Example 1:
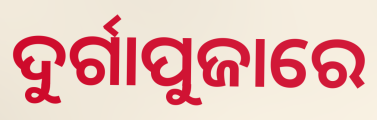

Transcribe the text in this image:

ଦୁର୍ଗାପୁଜାରେ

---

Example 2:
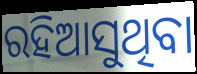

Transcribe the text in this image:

ରହିଆସୁଥିବା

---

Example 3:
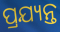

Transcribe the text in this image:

ପ୍ରଯ୍ୟନ୍ତ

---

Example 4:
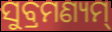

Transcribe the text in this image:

ସୁବ୍ରମଣ୍ୟମ୍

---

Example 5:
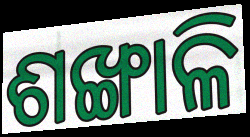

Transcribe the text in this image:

ଶଙ୍ଖାଳି